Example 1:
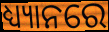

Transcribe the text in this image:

ଧ୍ୟ୍ୟାନରେ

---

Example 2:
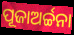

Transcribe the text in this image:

ପୂଜାଅର୍ଚ୍ଚନା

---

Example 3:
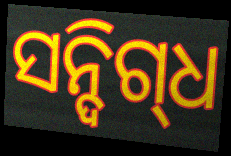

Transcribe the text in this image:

ସନ୍ଦିଗ୍‌ଧ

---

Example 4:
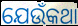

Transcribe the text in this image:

ଯେଉଁକଥା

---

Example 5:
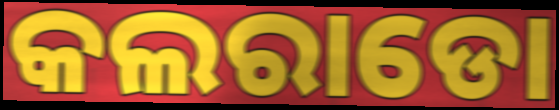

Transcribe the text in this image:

କଲରାଡୋ